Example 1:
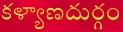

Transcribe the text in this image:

కళ్యాణదుర్గం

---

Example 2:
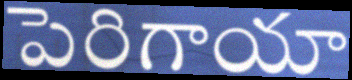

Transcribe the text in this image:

పెరిగాయా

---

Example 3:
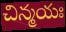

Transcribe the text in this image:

చిన్మయః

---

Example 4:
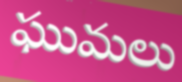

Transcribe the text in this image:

ఘుమలు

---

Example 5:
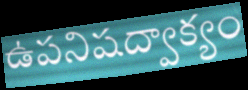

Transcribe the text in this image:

ఉపనిషద్వాక్యం